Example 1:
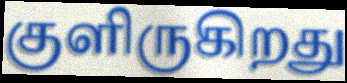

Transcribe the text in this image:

குளிருகிறது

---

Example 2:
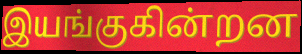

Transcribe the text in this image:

இயங்குகின்றன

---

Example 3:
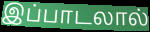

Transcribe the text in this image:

இப்பாடலால்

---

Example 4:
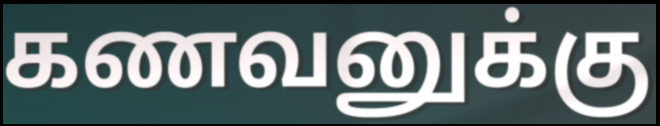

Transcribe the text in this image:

கணவனுக்கு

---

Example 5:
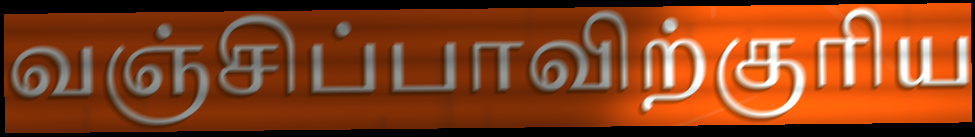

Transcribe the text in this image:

வஞ்சிப்பாவிற்குரிய